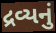
દ્રવ્યનું